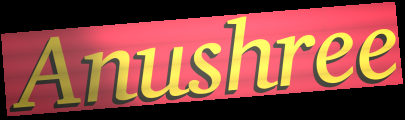
Anushree